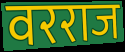
वरराज